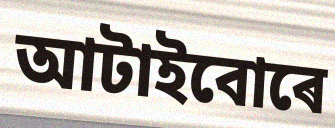
আটাইবোৰে